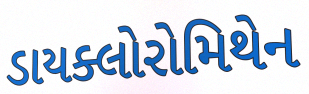
ડાયક્લોરોમિથેન